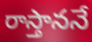
రాస్తాననే